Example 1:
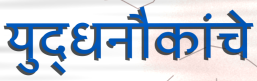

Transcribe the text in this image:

युद्धनौकांचे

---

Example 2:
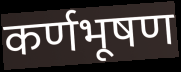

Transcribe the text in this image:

कर्णभूषण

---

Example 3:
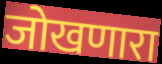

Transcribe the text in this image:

जोखणारा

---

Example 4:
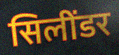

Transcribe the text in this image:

सिलींडर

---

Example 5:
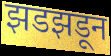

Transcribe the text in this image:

झडझडून